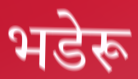
भडेरू